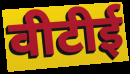
वीटीई